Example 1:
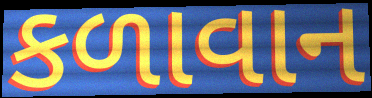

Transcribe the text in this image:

કળાવાન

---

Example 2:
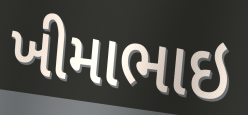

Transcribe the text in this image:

ખીમાભાઇ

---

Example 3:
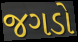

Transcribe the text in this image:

જગડો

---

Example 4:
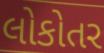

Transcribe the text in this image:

લોકોતર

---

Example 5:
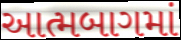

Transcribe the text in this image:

આત્મબાગમાં